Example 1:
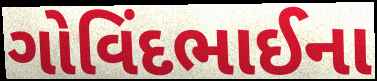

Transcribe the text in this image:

ગોવિંદભાઈના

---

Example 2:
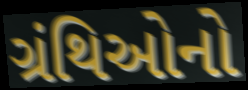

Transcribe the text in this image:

ગ્રંથિઓનો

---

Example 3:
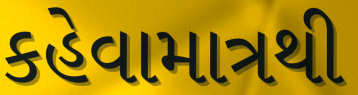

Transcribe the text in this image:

કહેવામાત્રથી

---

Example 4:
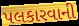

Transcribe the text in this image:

પલકારવાની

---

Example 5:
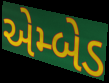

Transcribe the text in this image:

એમ્બેડ